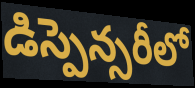
డిస్పెన్సరీలో